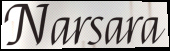
Narsara